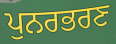
ਪੁਨਰਭਰਣ